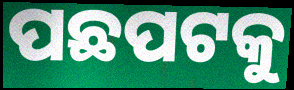
ପଛପଟକୁ